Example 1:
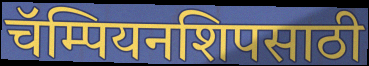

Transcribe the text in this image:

चॅम्पियनशिपसाठी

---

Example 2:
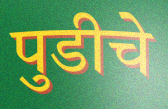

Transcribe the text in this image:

पुडीचे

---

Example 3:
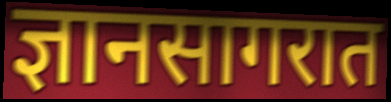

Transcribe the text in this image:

ज्ञानसागरात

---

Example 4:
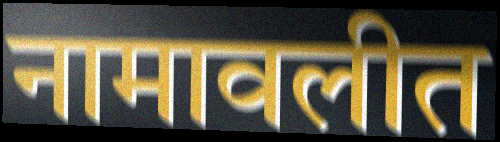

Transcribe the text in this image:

नामावलीत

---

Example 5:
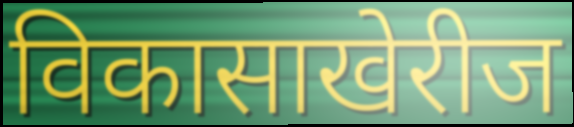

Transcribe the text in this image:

विकासाखेरीज